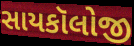
સાયકૉલોજી